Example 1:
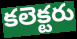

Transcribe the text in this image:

కలెక్టరు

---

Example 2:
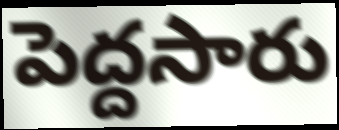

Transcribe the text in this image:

పెద్దసారు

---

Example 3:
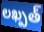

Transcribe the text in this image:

లఖ్పత్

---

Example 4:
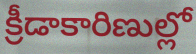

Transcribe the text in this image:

క్రీడాకారిణుల్లో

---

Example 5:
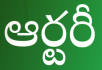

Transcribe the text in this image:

ఆర్టరీ